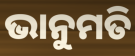
ଭାନୁମତି